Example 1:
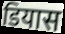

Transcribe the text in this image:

डियास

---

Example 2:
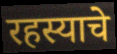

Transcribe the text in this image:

रहस्याचे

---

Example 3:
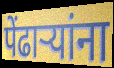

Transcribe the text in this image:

पेंढाऱ्यांना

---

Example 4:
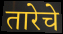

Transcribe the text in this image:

तारेचे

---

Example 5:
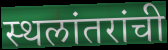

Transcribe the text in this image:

स्थलांतरांची